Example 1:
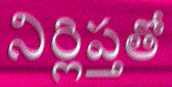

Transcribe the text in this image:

నిర్లిప్తతో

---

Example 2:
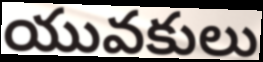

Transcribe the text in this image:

యువకులు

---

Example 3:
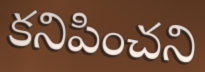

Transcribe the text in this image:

కనిపించని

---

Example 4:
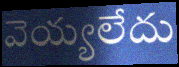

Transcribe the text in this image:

వెయ్యలేదు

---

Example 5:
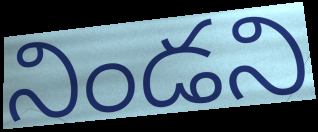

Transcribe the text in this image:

నిండని